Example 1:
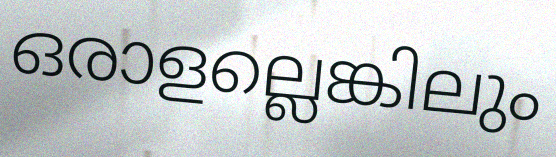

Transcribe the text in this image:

ഒരാളല്ലെങ്കിലും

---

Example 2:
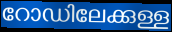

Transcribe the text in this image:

റോഡിലേക്കുള്ള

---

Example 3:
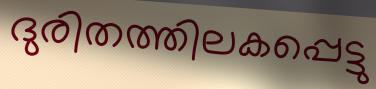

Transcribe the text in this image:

ദുരിതത്തിലകപ്പെട്ടു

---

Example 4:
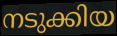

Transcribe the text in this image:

നടുക്കിയ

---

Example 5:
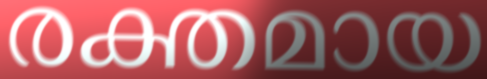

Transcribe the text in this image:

രക്തമായ